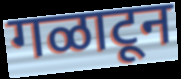
गळाटून